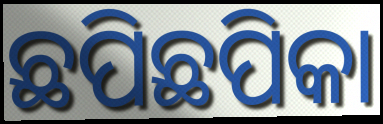
ଛପିଛପିକା